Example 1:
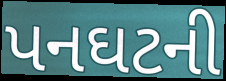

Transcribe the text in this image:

પનઘટની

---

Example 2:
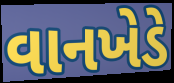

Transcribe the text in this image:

વાનખેડે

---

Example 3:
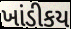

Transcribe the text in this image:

ખાંડીકય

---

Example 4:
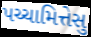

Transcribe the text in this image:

પચ્ચામિત્તેસુ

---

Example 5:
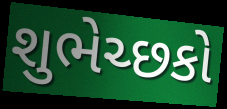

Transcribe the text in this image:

શુભેચ્છકો